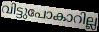
വിട്ടുപോകാറില്ല